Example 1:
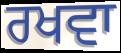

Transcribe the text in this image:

ਰਖਵਾ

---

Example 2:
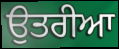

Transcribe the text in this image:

ਉਤਰੀਆ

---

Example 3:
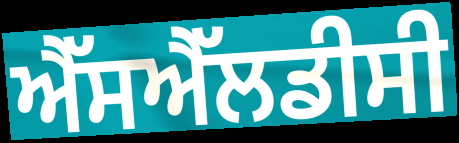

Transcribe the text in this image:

ਐੱਸਐੱਲਡੀਸੀ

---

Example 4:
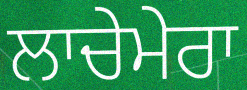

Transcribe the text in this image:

ਲਾਚੇਮੇਰਾ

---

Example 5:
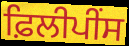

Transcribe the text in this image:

ਫ਼ਿਲੀਪੀਂਸ